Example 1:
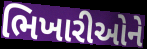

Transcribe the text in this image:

ભિખારીઓને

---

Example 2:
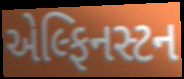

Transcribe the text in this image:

એલ્ફિનસ્ટન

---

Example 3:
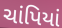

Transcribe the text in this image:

ચાંપિયાં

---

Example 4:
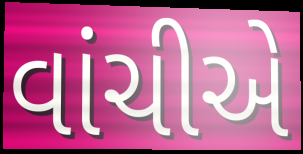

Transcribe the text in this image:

વાંચીએ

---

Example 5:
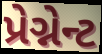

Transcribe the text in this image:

પ્રેગ્નેન્ટ